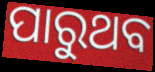
ପାରୁଥବ